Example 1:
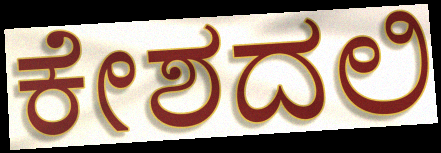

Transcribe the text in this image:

ಕೇಶದಲಿ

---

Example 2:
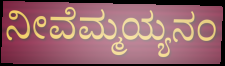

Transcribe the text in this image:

ನೀವೆಮ್ಮಯ್ಯನಂ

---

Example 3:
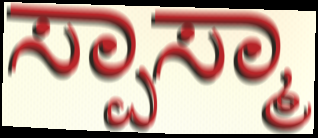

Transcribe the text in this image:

ಸ್ಪಾಸ್ಮಾ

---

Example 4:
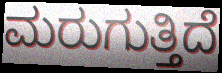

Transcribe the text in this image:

ಮರುಗುತ್ತಿದೆ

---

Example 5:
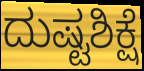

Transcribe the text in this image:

ದುಷ್ಟಶಿಕ್ಷೆ